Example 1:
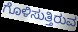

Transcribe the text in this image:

ಗೊಳಿಸುತ್ತಿರುವ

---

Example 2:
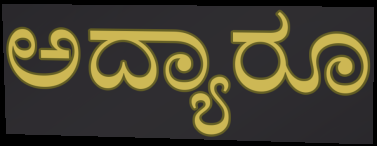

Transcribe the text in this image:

ಅದ್ಯಾರೂ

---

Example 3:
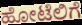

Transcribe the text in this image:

ಹೋಟೆಲಿಗೆ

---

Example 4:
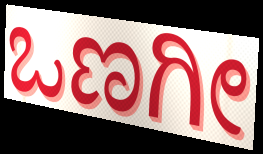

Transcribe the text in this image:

ಒಣಗೀ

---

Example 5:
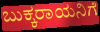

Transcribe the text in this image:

ಬುಕ್ಕರಾಯನಿಗೆ